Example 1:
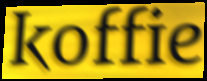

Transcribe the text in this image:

koffie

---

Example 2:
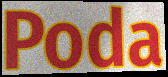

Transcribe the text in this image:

Poda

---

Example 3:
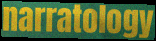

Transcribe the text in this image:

narratology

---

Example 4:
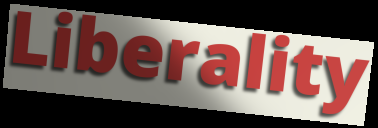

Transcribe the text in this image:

Liberality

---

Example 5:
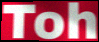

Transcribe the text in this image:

Toh